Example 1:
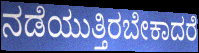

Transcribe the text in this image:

ನಡೆಯುತ್ತಿರಬೇಕಾದರೆ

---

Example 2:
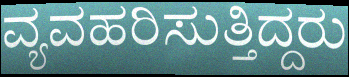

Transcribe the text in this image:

ವ್ಯವಹರಿಸುತ್ತಿದ್ದರು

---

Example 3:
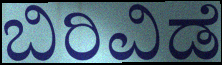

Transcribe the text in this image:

ಬಿರಿವಿಡೆ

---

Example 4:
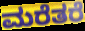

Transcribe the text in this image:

ಮರೆತರೆ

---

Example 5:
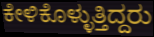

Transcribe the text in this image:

ಕೇಳಿಕೊಳ್ಳುತ್ತಿದ್ದರು